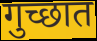
गुच्छात